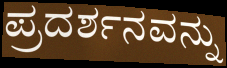
ಪ್ರದರ್ಶನವನ್ನು